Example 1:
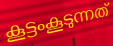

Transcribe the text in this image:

കൂട്ടംകൂടുന്നത്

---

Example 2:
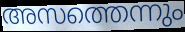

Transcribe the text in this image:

അസത്തെന്നും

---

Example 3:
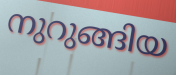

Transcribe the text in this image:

നുറുങ്ങിയ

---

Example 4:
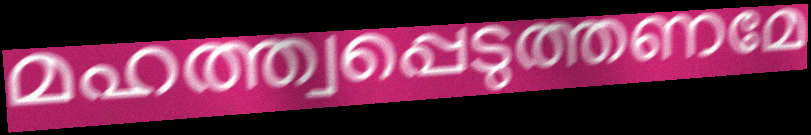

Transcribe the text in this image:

മഹത്ത്വപ്പെടുത്തണമേ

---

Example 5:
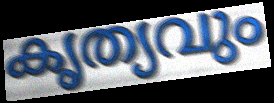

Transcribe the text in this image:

കൃത്യവും